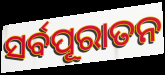
ସର୍ବପୂରାତନ